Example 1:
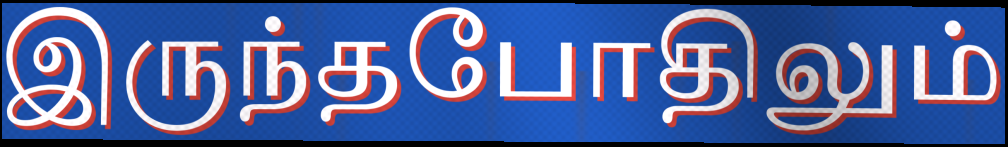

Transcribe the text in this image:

இருந்தபோதிலும்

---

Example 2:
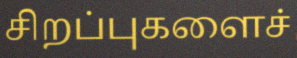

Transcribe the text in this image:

சிறப்புகளைச்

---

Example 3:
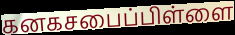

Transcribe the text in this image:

கனகசபைப்பிள்ளை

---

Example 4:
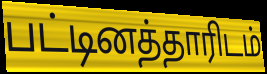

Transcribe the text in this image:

பட்டினத்தாரிடம்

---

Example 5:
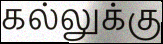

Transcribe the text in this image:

கல்லுக்கு